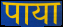
पाया